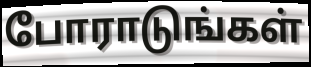
போராடுங்கள்